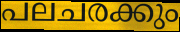
പലചരക്കും